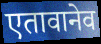
एतावानेव